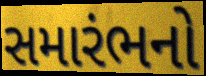
સમારંભનો